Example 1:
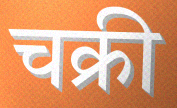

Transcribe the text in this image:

चक्री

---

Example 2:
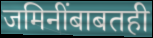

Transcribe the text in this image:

जमिनींबाबतही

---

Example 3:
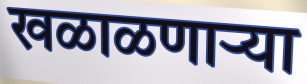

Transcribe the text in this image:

खळाळणाऱ्या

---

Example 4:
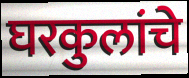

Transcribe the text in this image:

घरकुलांचे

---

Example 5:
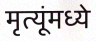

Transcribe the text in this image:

मृत्यूंमध्ये